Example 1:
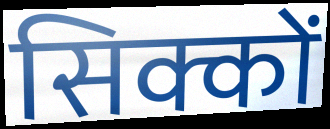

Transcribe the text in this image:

सिक्कों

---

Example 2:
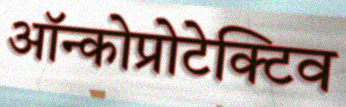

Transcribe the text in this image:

ऑन्कोप्रोटेक्टिव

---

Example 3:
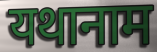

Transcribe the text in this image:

यथानाम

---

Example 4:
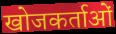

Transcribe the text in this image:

खोजकर्ताओं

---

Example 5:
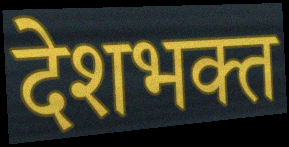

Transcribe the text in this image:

देशभक्त